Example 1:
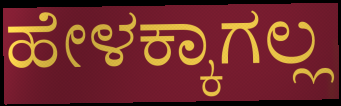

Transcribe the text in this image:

ಹೇಳಕ್ಕಾಗಲ್ಲ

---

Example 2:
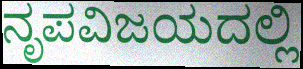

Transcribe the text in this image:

ನೃಪವಿಜಯದಲ್ಲಿ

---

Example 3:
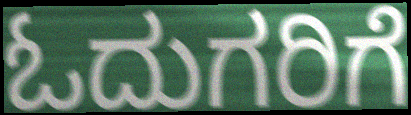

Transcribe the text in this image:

ಓದುಗರಿಗೆ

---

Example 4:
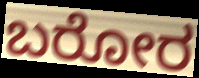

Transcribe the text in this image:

ಬರೋರ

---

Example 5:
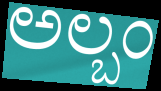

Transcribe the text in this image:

ಅಲ್ಬಂ